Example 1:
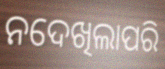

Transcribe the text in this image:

ନଦେଖିଲାପରି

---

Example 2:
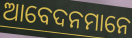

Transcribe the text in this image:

ଆବେଦନମାନେ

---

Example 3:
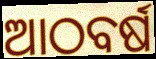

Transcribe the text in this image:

ଆଠବର୍ଷ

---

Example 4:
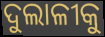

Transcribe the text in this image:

ଦୁଲାଳୀକୁ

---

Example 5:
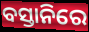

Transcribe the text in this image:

ବସ୍ତାନିରେ